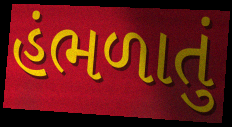
હંભળાતું